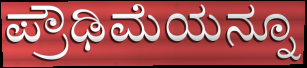
ಪ್ರೌಢಿಮೆಯನ್ನೂ